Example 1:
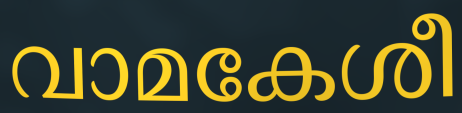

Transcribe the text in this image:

വാമകേശീ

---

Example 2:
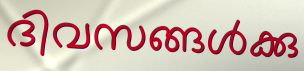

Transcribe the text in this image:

ദിവസങ്ങൾക്കു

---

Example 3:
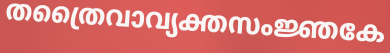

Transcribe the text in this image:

തത്രൈവാവ്യക്തസംജ്ഞകേ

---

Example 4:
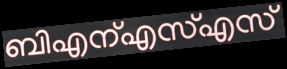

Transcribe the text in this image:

ബിഎന്എസ്എസ്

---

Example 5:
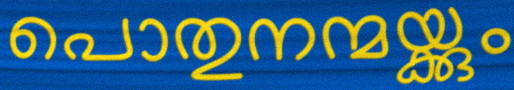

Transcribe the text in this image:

പൊതുനന്മയ്ക്കും